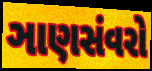
ઞાણસંવરો